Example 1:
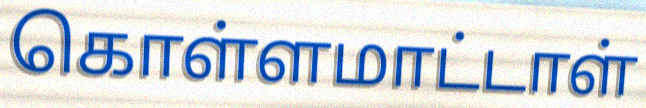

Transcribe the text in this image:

கொள்ளமாட்டாள்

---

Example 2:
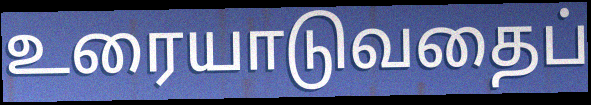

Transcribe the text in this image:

உரையாடுவதைப்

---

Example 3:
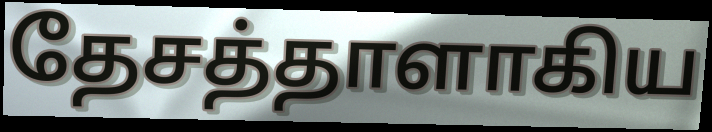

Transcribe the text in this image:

தேசத்தாளாகிய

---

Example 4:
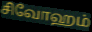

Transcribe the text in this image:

சிவோஹம்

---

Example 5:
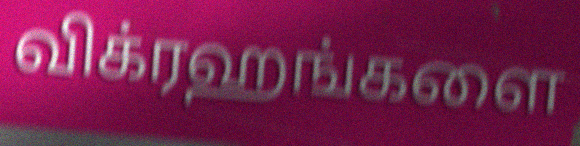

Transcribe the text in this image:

விக்ரஹங்களை